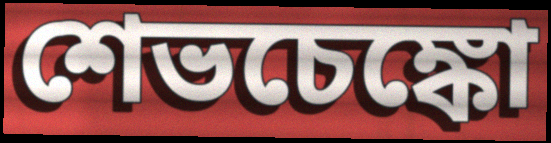
শেভচেঙ্কো